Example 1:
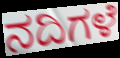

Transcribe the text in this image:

ನದಿಗಳೆ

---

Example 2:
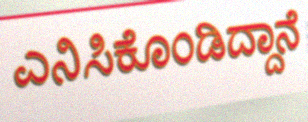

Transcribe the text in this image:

ಎನಿಸಿಕೊಂಡಿದ್ದಾನೆ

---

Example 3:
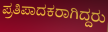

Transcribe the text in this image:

ಪ್ರತಿಪಾದಕರಾಗಿದ್ದರು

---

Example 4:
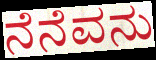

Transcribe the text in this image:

ನೆನೆವನು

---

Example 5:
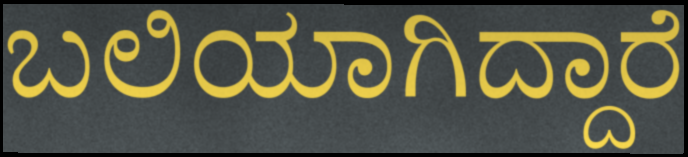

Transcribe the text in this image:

ಬಲಿಯಾಗಿದ್ದಾರೆ